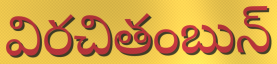
విరచితంబున్